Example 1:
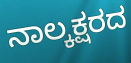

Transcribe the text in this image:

ನಾಲ್ಕಕ್ಷರದ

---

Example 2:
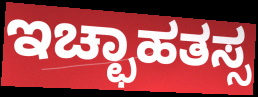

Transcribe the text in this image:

ಇಚ್ಛಾಹತಸ್ಸ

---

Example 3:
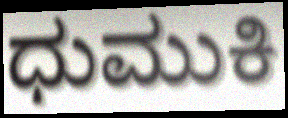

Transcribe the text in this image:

ಧುಮುಕಿ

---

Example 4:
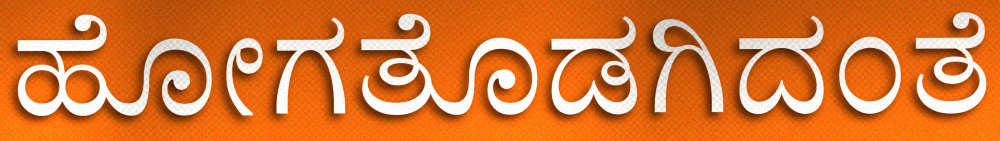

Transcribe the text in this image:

ಹೋಗತೊಡಗಿದಂತೆ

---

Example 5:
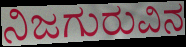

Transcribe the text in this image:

ನಿಜಗುರುವಿನ